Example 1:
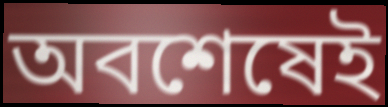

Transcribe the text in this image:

অবশেষেই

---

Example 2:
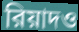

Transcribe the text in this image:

রিয়াদও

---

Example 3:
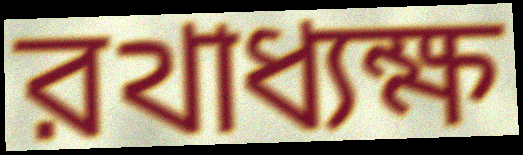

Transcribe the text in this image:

রথাধ্যক্ষ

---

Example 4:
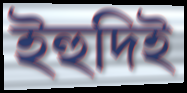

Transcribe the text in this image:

ইহুদিই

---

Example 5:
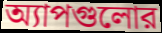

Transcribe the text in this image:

অ্যাপগুলোর